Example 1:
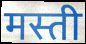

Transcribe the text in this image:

मस्ती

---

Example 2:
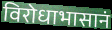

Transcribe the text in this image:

विरोधाभासानं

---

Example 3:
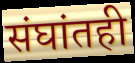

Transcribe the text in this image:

संघांतही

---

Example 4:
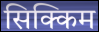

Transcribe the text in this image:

सिक्किम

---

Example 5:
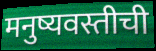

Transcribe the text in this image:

मनुष्यवस्तीची